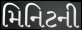
મિનિટની